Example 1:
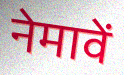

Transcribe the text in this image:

नेमावें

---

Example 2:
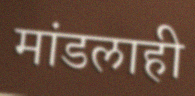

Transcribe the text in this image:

मांडलाही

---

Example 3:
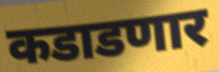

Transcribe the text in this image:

कडाडणार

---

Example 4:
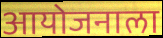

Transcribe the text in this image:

आयोजनाला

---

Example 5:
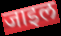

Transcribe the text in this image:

जाइल